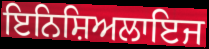
ਇਨਿਸ਼ਿਅਲਾਇਜ